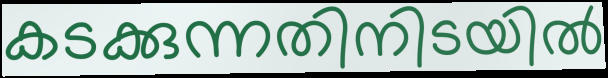
കടക്കുന്നതിനിടയിൽ